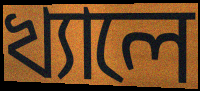
খ্যালে